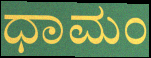
ಧಾಮಂ